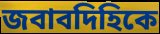
জবাবদিহিকে